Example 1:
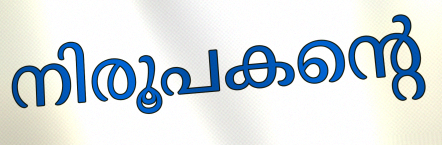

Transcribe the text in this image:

നിരൂപകന്റെ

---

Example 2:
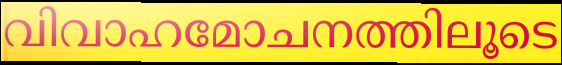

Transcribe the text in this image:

വിവാഹമോചനത്തിലൂടെ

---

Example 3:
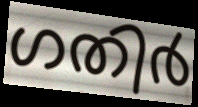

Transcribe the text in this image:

ഗതിർ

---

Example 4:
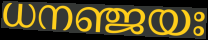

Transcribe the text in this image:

ധനഞ്ജയഃ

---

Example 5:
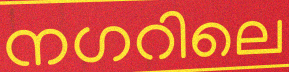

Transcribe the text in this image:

നഗറിലെ